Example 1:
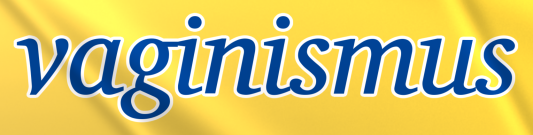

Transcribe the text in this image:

vaginismus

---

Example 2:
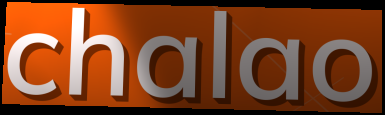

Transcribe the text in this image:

chalao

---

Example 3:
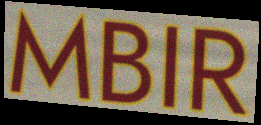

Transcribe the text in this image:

MBIR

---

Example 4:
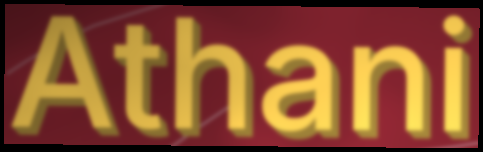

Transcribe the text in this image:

Athani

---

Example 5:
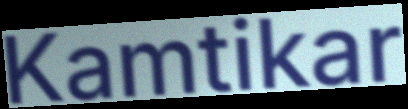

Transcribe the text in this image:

Kamtikar